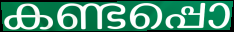
കണ്ടപ്പൊ